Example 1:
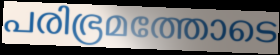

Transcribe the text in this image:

പരിഭ്രമത്തോടെ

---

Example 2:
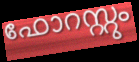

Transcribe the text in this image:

ഫോറസ്റ്റും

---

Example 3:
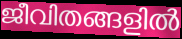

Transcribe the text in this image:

ജീവിതങ്ങളിൽ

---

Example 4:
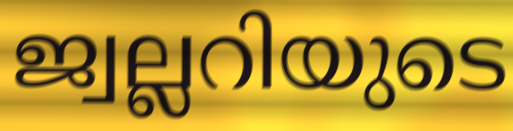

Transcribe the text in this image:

ജ്വല്ലറിയുടെ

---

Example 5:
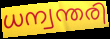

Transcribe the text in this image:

ധന്വന്തരി